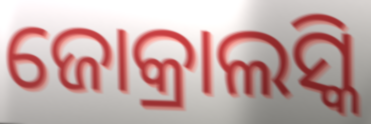
ଜୋକ୍ରାଲସ୍କି